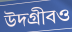
উদগ্রীবও